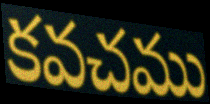
కవచము